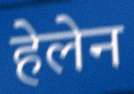
हेलेन